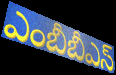
ఎంబీబీఎస్